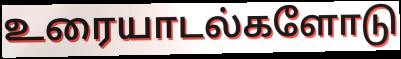
உரையாடல்களோடு